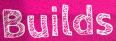
Builds